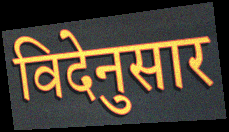
विदेनुसार